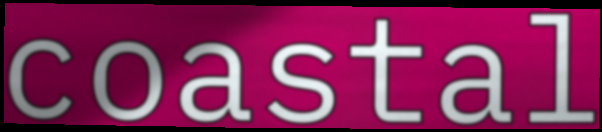
coastal